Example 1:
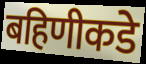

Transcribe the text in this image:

बहिणीकडे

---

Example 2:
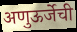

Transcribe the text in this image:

अणुऊर्जेची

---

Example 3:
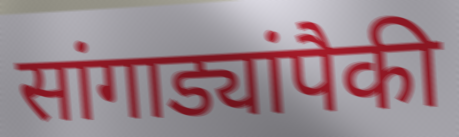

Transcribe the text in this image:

सांगाड्यांपैकी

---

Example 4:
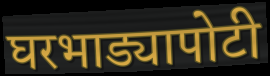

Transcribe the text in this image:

घरभाड्यापोटी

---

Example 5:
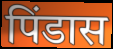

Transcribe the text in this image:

पिंडास